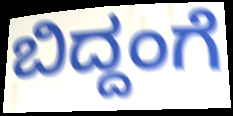
ಬಿದ್ದಂಗೆ